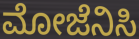
ಮೋಜೆನಿಸಿ